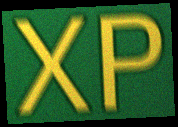
XP